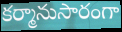
కర్మానుసారంగా